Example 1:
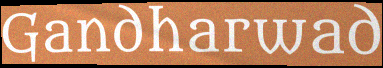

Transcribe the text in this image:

Gandharwad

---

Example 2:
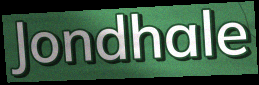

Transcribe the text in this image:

Jondhale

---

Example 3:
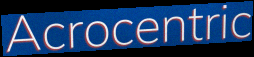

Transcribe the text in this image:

Acrocentric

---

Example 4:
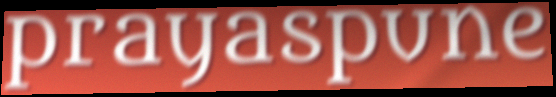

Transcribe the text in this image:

prayaspune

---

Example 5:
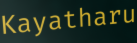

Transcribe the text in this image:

Kayatharu